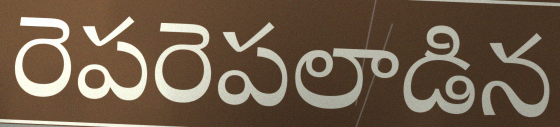
రెపరెపలాడిన